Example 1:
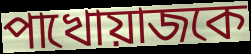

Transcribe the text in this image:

পাখোয়াজকে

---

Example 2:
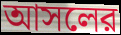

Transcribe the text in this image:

আসলের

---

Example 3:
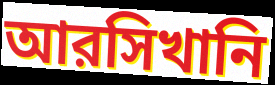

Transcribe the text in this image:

আরসিখানি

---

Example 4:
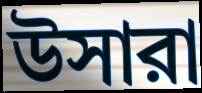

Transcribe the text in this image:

উসারা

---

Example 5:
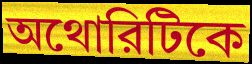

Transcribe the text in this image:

অথোরিটিকে